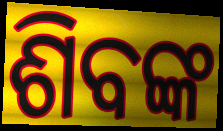
ଶିବଙ୍କ